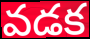
వడక